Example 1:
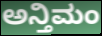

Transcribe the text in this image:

ಅನ್ತಿಮಂ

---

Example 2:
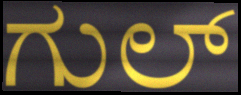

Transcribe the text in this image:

ಗುಲ್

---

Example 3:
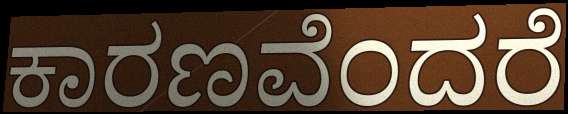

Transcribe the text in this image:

ಕಾರಣವೆಂದರೆ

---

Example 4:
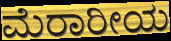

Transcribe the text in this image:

ಮೆರಾರೀಯ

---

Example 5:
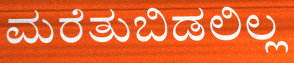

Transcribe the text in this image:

ಮರೆತುಬಿಡಲಿಲ್ಲ